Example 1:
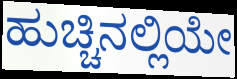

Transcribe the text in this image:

ಹುಚ್ಚಿನಲ್ಲಿಯೇ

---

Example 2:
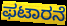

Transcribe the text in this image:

ಫಟಾರನೆ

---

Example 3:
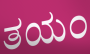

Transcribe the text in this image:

ತಯಂ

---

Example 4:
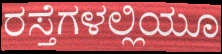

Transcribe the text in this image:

ರಸ್ತೆಗಳಲ್ಲಿಯೂ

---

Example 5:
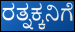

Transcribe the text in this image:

ರತ್ನಕ್ಕನಿಗೆ